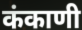
कंकाणी